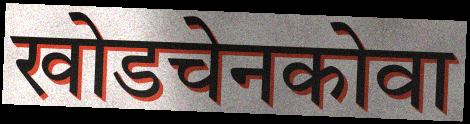
खोडचेनकोवा